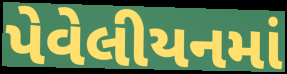
પેવેલીયનમાં